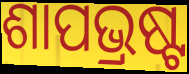
ଶାପଭ୍ରଷ୍ଟ